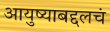
आयुष्याबद्दलचं